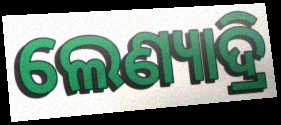
ଲେଣ୍ୟାଦ୍ରି